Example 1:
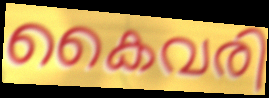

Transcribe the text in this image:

കൈവരി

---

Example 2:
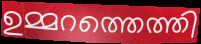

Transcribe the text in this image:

ഉമ്മറത്തെത്തി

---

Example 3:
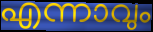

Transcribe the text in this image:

എന്നാവും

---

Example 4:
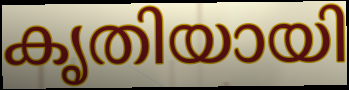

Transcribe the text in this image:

കൃതിയായി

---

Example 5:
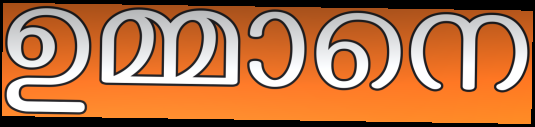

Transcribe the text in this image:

ഉമ്മാനെ